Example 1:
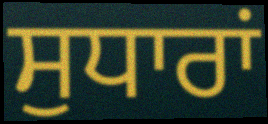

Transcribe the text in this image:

ਸੁਧਾਰਾਂ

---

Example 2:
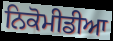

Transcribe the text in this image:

ਨਿਕੋਮੀਡੀਆ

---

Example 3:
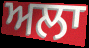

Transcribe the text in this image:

ਅਲਾ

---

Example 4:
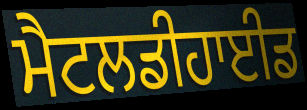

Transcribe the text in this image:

ਮੈਟਲਡੀਹਾਈਡ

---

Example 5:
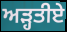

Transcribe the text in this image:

ਅੜ੍ਹਤੀਏ